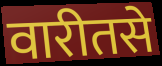
वारीतसे